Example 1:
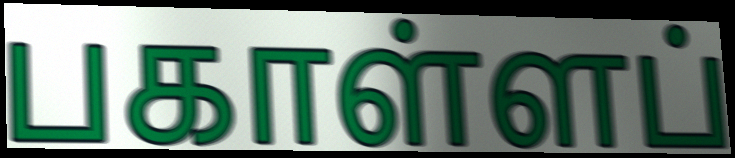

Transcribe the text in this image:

பகாள்ளப்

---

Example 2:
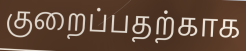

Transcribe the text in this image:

குறைப்பதற்காக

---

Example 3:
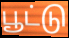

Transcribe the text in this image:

பூட்டு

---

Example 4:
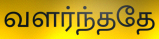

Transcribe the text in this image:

வளர்ந்ததே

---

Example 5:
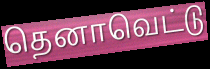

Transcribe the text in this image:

தெனாவெட்டு